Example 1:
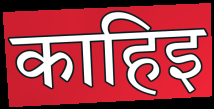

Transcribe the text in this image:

काहिइ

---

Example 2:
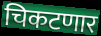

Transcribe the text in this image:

चिकटणार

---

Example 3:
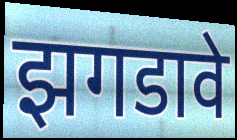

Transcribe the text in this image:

झगडावे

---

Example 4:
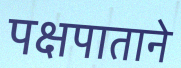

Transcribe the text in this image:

पक्षपाताने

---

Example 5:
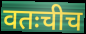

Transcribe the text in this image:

वतःचीच